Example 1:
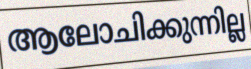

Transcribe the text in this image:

ആലോചിക്കുന്നില്ല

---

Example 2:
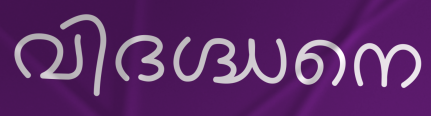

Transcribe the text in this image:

വിദഗ്ദ്ധനെ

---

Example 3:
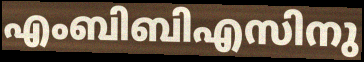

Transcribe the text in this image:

എംബിബിഎസിനു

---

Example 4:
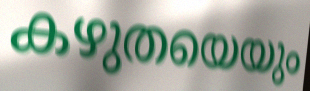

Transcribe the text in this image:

കഴുതയെയും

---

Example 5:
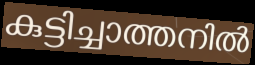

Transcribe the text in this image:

കുട്ടിച്ചാത്തനിൽ